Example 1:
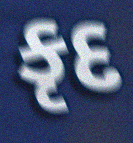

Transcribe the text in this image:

કૃદ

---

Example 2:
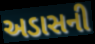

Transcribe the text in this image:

અડાસની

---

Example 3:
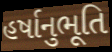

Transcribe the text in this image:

હર્ષાનુભૂતિ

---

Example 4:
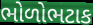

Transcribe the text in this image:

ભોળોભટાક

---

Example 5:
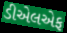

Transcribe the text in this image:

ડીએલએફ